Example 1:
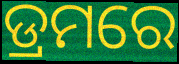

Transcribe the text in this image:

ଡ୍ରମରେ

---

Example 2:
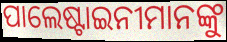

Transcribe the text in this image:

ପାଲେଷ୍ଟାଇନୀମାନଙ୍କୁ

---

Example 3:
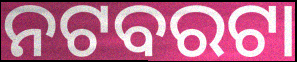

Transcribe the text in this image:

ନଟବରଟା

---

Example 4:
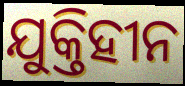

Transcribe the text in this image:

ଯୁକ୍ତିହୀନ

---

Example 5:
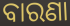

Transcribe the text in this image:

ବାରଣା